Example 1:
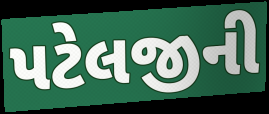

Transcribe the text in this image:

પટેલજીની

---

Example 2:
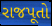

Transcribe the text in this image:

રાજપૂતો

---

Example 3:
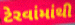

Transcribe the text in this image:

ટેરવાંમાંથી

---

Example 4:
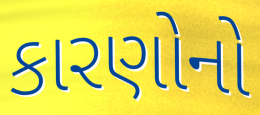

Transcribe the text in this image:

કારણોનો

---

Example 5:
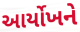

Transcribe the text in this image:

આર્યોખને